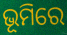
ଭୂମିରେ